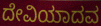
ದೇವಿಯಾದವ